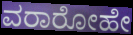
ವರಾರೋಹೇ